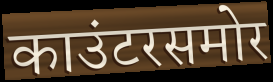
काउंटरसमोर